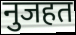
नुजहत